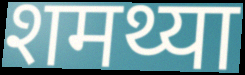
शमथ्या